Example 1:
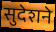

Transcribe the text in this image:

सुदेशने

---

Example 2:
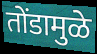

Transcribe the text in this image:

तोंडामुळे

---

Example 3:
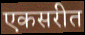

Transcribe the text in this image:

एकसरीत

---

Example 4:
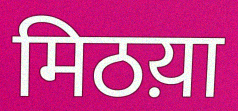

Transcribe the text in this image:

मिठय़ा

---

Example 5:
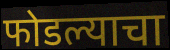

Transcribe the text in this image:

फोडल्याचा